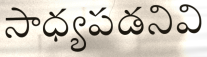
సాధ్యపడనివి